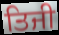
ਤਿਜੀ